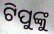
ଟିପୁଙ୍କୁ